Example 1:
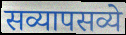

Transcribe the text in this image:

सव्यापसव्ये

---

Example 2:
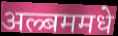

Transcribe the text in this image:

अल्बममधे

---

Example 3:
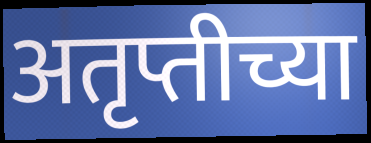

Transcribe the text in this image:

अतृप्तीच्या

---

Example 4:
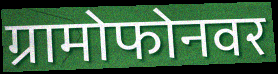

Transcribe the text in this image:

ग्रामोफोनवर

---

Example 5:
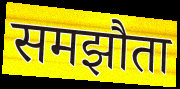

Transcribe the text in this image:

समझौता